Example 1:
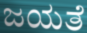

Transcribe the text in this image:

ಜಯತೆ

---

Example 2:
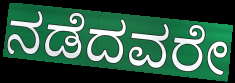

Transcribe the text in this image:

ನಡೆದವರೇ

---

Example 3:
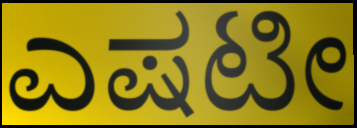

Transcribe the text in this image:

ಎಷಟೀ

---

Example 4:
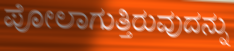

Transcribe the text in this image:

ಪೋಲಾಗುತ್ತಿರುವುದನ್ನು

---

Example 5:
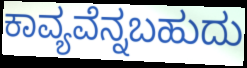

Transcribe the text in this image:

ಕಾವ್ಯವೆನ್ನಬಹುದು